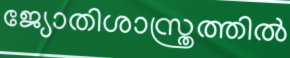
ജ്യോതിശാസ്ത്രത്തിൽ